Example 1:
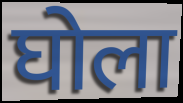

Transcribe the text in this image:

घोला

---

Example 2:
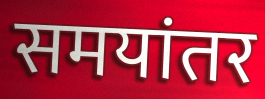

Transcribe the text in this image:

समयांतर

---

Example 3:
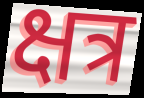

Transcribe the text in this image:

क्षत्र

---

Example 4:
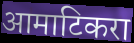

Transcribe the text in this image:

आमाटिकरा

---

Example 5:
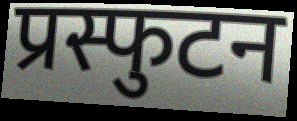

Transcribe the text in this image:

प्रस्फुटन